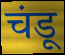
चंडू